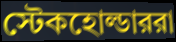
স্টেকহোল্ডাররা